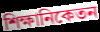
শিক্ষানিকেতন